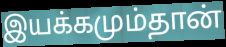
இயக்கமும்தான்